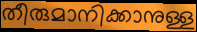
തീരുമാനിക്കാനുള്ള